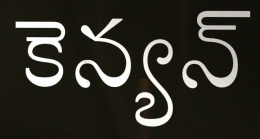
కెన్యన్